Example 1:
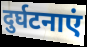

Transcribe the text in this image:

दुर्घटनाएं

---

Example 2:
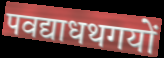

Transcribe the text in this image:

पवद्याधथगयों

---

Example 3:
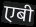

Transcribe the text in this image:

एबी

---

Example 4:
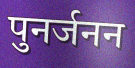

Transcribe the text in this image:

पुनर्जनन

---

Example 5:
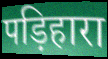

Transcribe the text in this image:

पड़िहारा